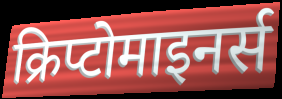
क्रिप्टोमाइनर्स